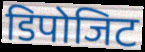
डिपोजिट